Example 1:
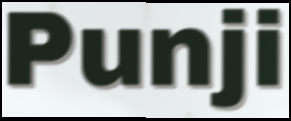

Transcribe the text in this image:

Punji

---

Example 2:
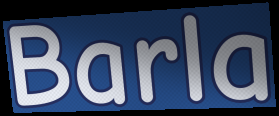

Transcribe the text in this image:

Barla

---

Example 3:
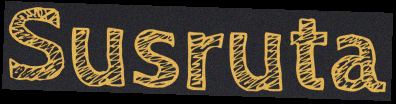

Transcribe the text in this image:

Susruta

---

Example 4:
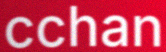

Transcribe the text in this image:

cchan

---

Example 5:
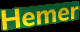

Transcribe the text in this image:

Hemer